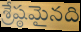
శ్రేష్ఠమైనది